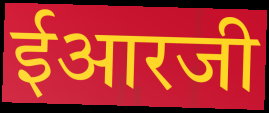
ईआरजी